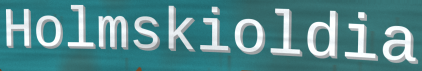
Holmskioldia